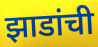
झाडांची